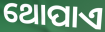
ଥୋପାଏ